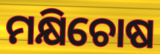
ମକ୍ଷିଚୋଷ